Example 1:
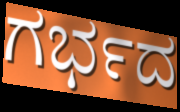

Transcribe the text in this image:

ಗರ್ಭದ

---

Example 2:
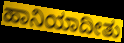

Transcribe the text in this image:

ಹಾನಿಯಾದೀತು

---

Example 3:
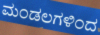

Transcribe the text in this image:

ಮಂಡಲಗಳಿಂದ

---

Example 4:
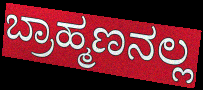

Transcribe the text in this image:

ಬ್ರಾಹ್ಮಣನಲ್ಲ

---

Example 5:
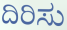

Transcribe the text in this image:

ದಿರಿಸು